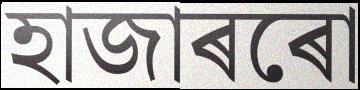
হাজাৰৰো